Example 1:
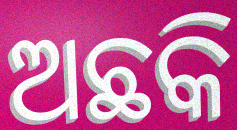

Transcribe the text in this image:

ଅଛକି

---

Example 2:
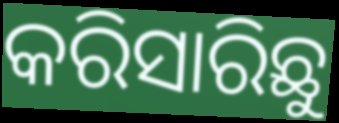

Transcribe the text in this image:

କରିସାରିଛୁ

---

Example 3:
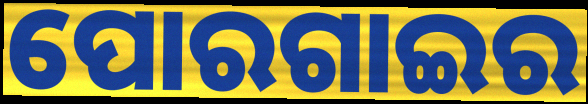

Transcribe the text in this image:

ପୋରଗାଇର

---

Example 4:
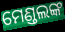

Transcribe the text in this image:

ମେଣ୍ଡଲଙ୍କ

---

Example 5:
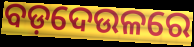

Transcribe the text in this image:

ବଡ଼ଦେଉଳରେ